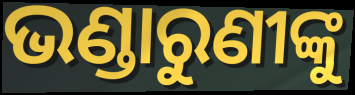
ଭଣ୍ଡାରୁଣୀଙ୍କୁ